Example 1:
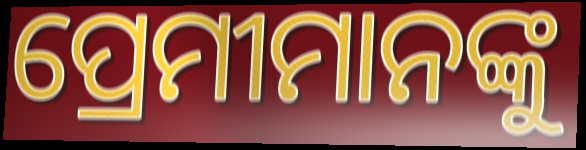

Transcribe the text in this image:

ପ୍ରେମୀମାନଙ୍କୁ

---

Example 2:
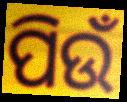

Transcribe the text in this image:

ପିଉଁ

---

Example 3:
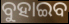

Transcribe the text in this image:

ବୁହାଇବ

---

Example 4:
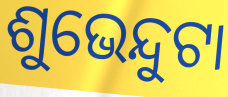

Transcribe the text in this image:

ଶୁଭେନ୍ଦୁଟା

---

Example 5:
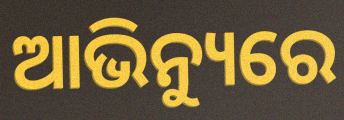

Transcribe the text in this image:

ଆଭିନ୍ୟୁରେ